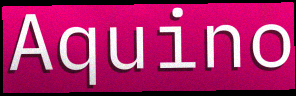
Aquino